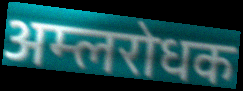
अम्लरोधक